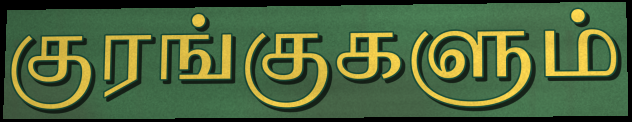
குரங்குகளும்